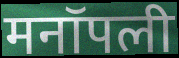
मनॉपली